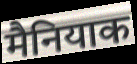
मैनियाक